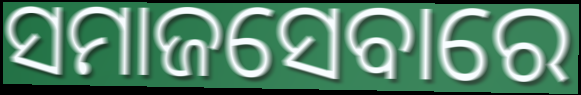
ସମାଜସେବାରେ